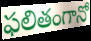
ఫలితంగానో